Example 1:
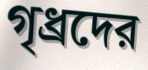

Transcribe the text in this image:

গৃধ্রদের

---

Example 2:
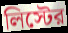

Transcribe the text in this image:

লিস্টের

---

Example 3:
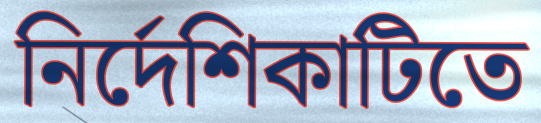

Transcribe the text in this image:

নির্দেশিকাটিতে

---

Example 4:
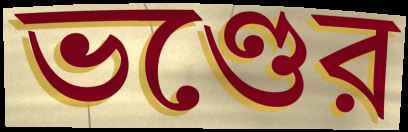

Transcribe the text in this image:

ভণ্ডের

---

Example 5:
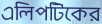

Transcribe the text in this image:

এলিপটিকের